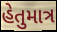
હેતુમાત્ર